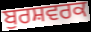
ਬੁਰਸ਼ਵਰਕ